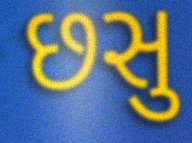
છસુ